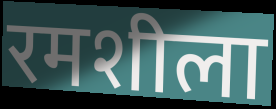
रमशीला